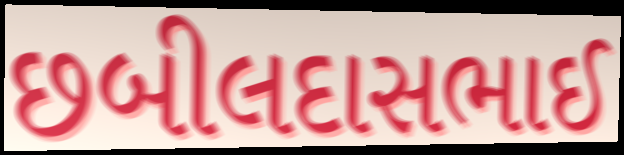
છબીલદાસભાઈ